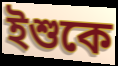
ইশুকে